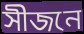
সীজনে